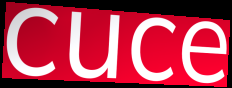
cuce